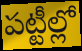
పట్టీల్లో